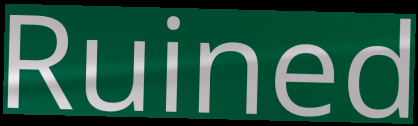
Ruined